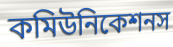
কমিউনিকেশনস